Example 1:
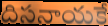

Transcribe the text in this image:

దిసనాయకే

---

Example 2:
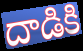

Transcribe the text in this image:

దాడికి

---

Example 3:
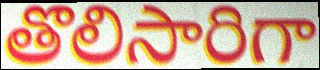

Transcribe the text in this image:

తొలిసారిగా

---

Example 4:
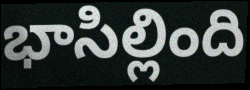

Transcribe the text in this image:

భాసిల్లింది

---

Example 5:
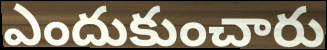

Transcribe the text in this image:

ఎందుకుంచారు